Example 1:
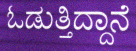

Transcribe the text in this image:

ಓಡುತ್ತಿದ್ದಾನೆ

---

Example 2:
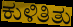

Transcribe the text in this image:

ಕುಳಿತಿತು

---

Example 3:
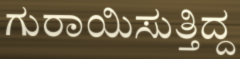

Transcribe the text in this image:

ಗುರಾಯಿಸುತ್ತಿದ್ದ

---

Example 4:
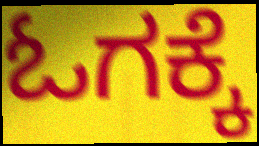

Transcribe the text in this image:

ಓಗಕ್ಕೆ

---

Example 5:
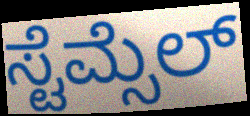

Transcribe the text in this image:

ಸ್ಟೆಮ್ಸೆಲ್